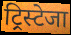
ट्रिस्टेजा